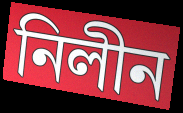
নিলীন